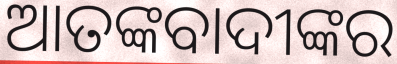
ଆତଙ୍କବାଦୀଙ୍କର